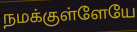
நமக்குள்ளேயே